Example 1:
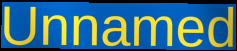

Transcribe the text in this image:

Unnamed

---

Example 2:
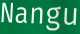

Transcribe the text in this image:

Nangu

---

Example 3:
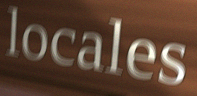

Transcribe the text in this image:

locales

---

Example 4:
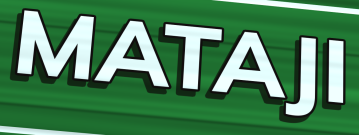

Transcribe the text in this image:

MATAJI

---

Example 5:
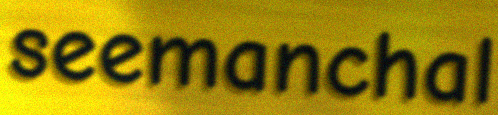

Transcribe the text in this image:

seemanchal